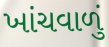
ખાંચવાળું